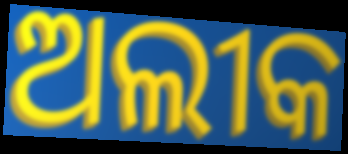
ଅଲୀକ